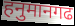
हनुमानगढ